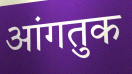
आंगतुक